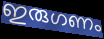
ഇരുഗണം